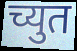
च्‍युत